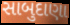
સાબુદાણા